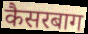
कैसरबाग